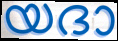
യദാ